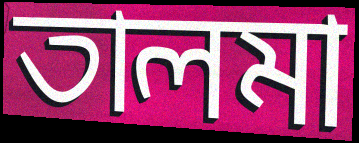
তালমা